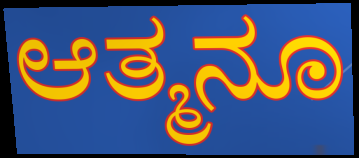
ಆತ್ಮನೂ